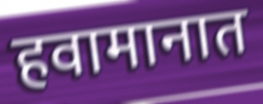
हवामानात